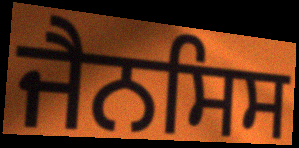
ਜੈਨਸਿਸ